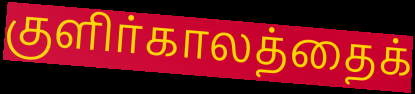
குளிர்காலத்தைக்